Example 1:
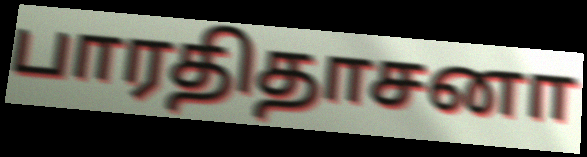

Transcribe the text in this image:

பாரதிதாசனா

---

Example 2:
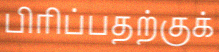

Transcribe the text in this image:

பிரிப்பதற்குக்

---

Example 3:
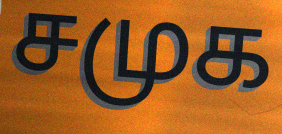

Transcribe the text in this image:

சமுக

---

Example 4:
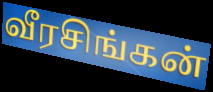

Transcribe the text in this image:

வீரசிங்கன்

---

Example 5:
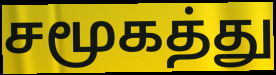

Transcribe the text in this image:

சமூகத்து